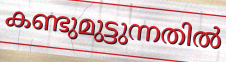
കണ്ടുമുട്ടുന്നതിൽ